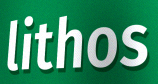
lithos